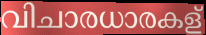
വിചാരധാരകള്